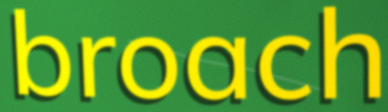
broach